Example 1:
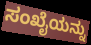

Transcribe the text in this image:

ಸಂಖೈಯನ್ನು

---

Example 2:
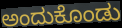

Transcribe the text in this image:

ಅಂದುಕೊಂಡು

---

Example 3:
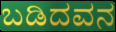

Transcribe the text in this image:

ಬಡಿದವನ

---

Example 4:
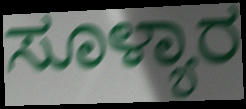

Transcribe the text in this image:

ಸೂಳ್ಯಾರ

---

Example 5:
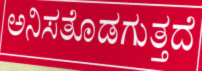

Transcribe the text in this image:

ಅನಿಸತೊಡಗುತ್ತದೆ